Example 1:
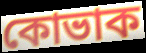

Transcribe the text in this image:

কোভাক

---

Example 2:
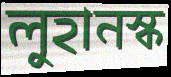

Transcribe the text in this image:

লুহানস্ক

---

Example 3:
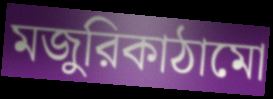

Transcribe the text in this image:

মজুরিকাঠামো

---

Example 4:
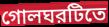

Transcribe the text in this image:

গোলঘরটিতে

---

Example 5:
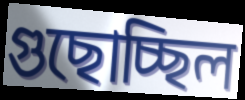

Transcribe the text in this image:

গুছোচ্ছিল